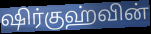
ஷிர்குஹ்வின்